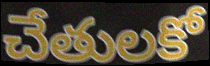
చేతులకో